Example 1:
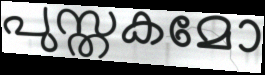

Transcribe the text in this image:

പുസ്തകമോ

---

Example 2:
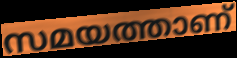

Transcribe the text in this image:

സമയത്താണ്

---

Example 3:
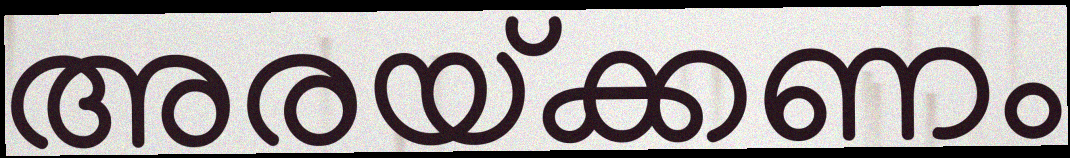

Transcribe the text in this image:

അരയ്‌ക്കണം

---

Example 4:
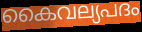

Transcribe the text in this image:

കൈവല്യപദം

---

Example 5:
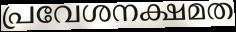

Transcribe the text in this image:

പ്രവേശനക്ഷമത